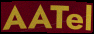
AATel